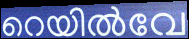
റെയിൽവേ